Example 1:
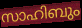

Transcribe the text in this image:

സാഹിബും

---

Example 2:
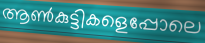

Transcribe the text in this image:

ആൺകുട്ടികളെപ്പോലെ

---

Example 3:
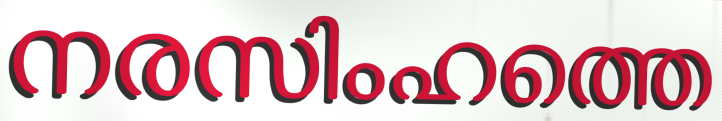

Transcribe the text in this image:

നരസിംഹത്തെ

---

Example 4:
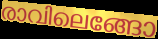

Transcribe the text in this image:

രാവിലെങ്ങോ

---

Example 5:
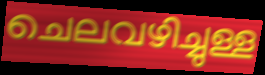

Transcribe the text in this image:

ചെലവഴിച്ചുള്ള